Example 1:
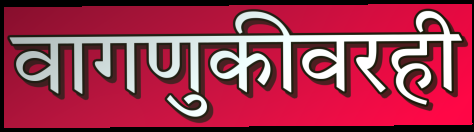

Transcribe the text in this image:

वागणुकीवरही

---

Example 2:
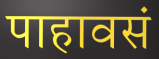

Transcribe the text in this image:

पाहावसं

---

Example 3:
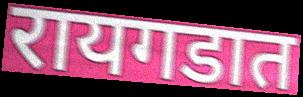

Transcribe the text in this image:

रायगडात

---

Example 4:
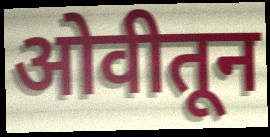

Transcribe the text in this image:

ओवीतून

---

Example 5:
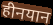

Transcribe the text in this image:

हीनयान